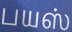
பயஸ்